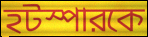
হটস্পারকে